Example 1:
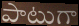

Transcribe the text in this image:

పాటుగా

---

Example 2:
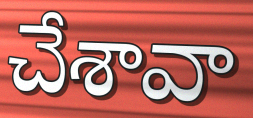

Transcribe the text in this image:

చేశావా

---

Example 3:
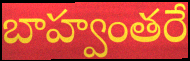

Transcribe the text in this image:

బాహ్వంతరే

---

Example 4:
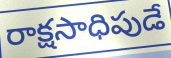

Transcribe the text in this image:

రాక్షసాధిపుడే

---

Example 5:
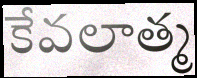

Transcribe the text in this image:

కేవలాత్మ